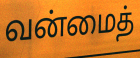
வன்மைத்